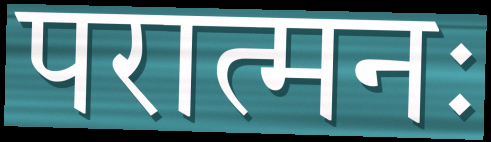
परात्मनः